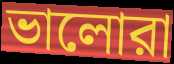
ভালোরা